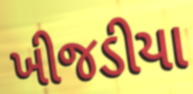
ખીજડીયા